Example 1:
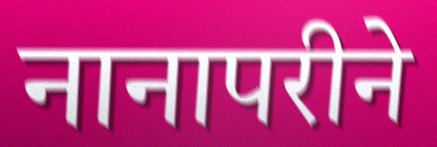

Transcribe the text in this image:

नानापरीने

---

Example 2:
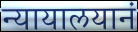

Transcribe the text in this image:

न्यायालयानं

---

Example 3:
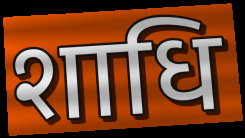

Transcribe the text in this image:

शाधि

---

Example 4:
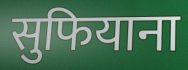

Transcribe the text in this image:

सुफियाना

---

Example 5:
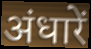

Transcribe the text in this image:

अंधारें